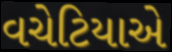
વચેટિયાએ